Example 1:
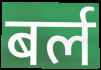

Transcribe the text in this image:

बर्ल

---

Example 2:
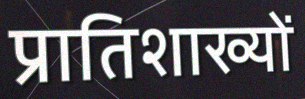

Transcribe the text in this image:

प्रातिशाख्यों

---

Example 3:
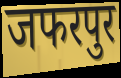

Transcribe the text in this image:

जफरपुर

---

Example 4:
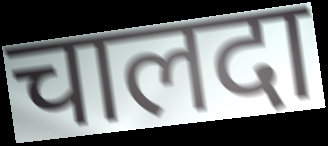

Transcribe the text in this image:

चालदा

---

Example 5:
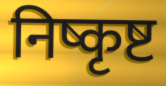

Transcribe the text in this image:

निष्कृष्ट